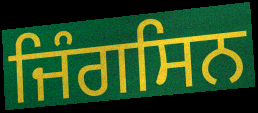
ਜਿੰਗਸਿਨ